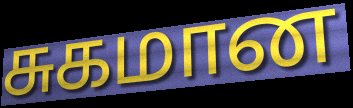
சுகமான